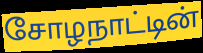
சோழநாட்டின்